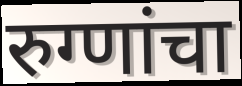
रुग्णांचा